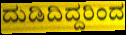
ದುಡಿದಿದ್ದರಿಂದ